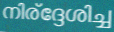
നിര്ദ്ദേശിച്ച